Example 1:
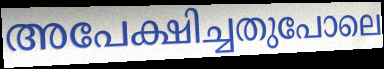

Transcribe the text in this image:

അപേക്ഷിച്ചതുപോലെ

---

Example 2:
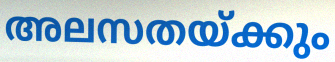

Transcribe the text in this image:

അലസതയ്ക്കും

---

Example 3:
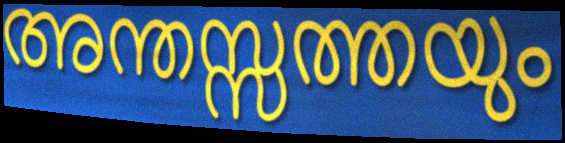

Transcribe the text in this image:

അന്തസ്സത്തയും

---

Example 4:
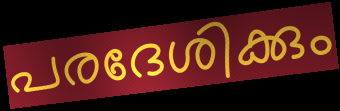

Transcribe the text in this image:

പരദേശിക്കും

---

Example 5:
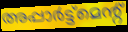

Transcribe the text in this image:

അപ്പാർട്ട്മെന്റ്